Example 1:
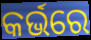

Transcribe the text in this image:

କର୍ଭରେ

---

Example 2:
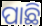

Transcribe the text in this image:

ପାଛି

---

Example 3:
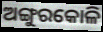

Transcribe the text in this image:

ଅଙ୍ଗୁରକୋଳି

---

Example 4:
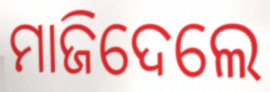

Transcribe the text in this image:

ମାଜିଦେଲେ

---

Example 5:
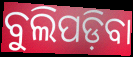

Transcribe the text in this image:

ବୁଲିପଡ଼ିବା